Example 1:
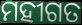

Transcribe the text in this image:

ମହୀଗତ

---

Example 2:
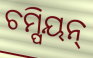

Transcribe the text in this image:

ଚମ୍ପିୟନ୍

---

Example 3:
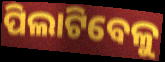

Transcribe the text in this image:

ପିଲାଟିବେଳୁ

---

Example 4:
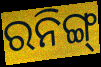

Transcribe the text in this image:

ରନିଙ୍ଗ୍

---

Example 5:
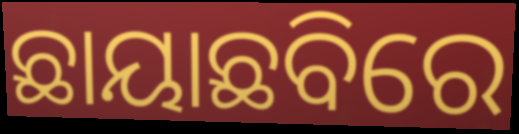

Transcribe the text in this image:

ଛାୟାଛବିରେ